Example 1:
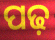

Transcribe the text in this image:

ପଢ଼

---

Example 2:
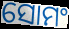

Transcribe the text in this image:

ସୋମଂ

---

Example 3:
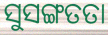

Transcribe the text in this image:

ସୁସଙ୍ଗତତା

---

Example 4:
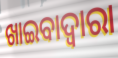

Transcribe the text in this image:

ଖାଇବାଦ୍ୱାରା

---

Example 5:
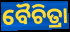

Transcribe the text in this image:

ବୈଚିତ୍ରା